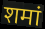
शमां